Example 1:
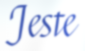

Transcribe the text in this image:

Jeste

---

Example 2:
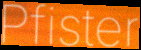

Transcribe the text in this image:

Pfister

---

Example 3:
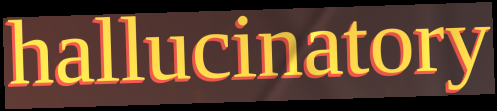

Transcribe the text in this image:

hallucinatory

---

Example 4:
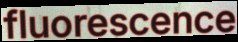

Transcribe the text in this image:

fluorescence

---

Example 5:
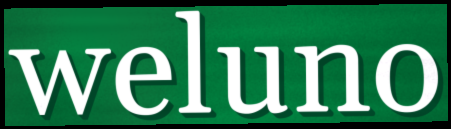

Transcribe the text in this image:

weluno